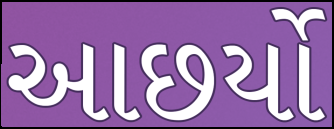
આછર્યો